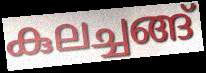
കുലച്ചങ്ങ്